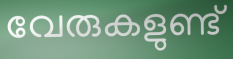
വേരുകളുണ്ട്